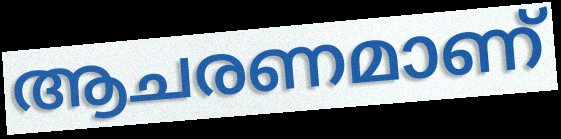
ആചരണമാണ്